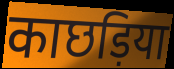
काछड़िया